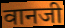
वानजी